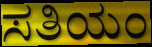
ಸತಿಯಂ